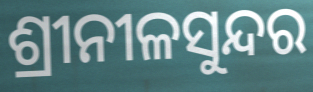
ଶ୍ରୀନୀଳସୁନ୍ଦର